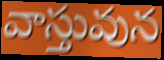
వాస్తువున